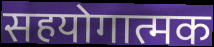
सहयोगात्मक